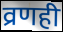
व्रणही